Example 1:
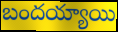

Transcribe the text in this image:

బందయ్యాయి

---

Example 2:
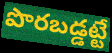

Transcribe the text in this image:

పొరబడ్డట్టే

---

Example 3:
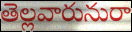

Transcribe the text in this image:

తెల్లవారునురా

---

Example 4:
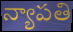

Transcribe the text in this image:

న్యాపతి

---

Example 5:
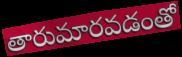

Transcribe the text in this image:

తారుమారవడంతో